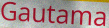
Gautama